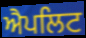
ਐਪਲਿਟ